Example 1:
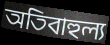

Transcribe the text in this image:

অতিবাহুল্য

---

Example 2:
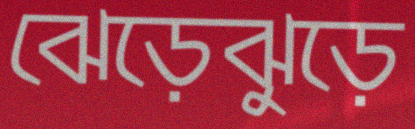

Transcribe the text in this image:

ঝেড়েঝুড়ে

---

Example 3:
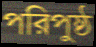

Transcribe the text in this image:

পরিপুষ্ঠ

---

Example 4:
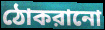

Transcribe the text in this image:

ঠোকরানো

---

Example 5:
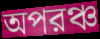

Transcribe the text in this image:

অপরঞ্চ